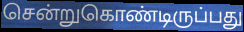
சென்றுகொண்டிருப்பது